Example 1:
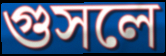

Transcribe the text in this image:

গুসলে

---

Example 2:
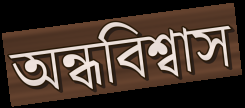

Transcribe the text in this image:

অন্ধবিশ্বাস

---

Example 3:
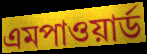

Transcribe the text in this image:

এমপাওয়ার্ড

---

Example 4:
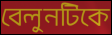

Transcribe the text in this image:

বেলুনটিকে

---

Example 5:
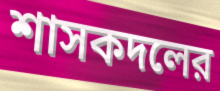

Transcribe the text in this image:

শাসকদলের